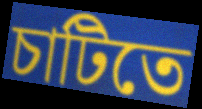
চাটিতে